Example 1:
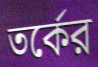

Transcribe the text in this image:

তর্কের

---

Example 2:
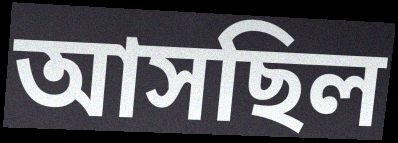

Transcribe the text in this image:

আসছিল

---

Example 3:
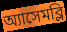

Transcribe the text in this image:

অ্যাসেমব্লি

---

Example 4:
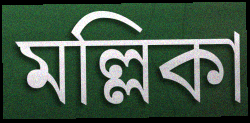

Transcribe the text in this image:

মল্লিকা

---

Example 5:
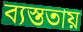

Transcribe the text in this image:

ব্যস্ততায়